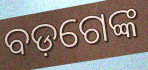
ବଡ଼ଗେଙ୍କ